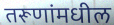
तरूणांमधील